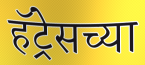
हॅट्रेसच्या